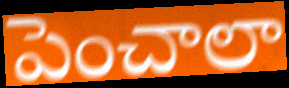
పెంచాలా